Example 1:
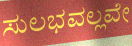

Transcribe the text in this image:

ಸುಲಭವಲ್ಲವೇ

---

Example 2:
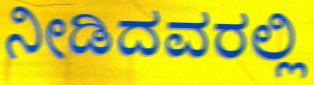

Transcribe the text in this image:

ನೀಡಿದವರಲ್ಲಿ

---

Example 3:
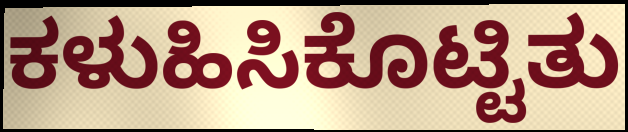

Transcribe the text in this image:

ಕಳುಹಿಸಿಕೊಟ್ಟಿತು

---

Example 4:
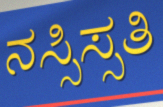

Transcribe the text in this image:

ನಸ್ಸಿಸ್ಸತಿ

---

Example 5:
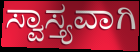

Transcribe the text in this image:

ಸ್ವಾಸ್ತ್ಯವಾಗಿ